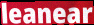
leanear